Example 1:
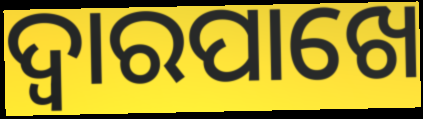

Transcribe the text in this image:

ଦ୍ୱାରପାଖେ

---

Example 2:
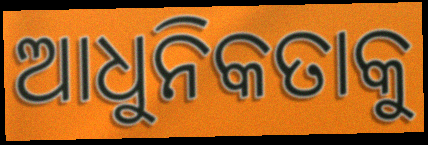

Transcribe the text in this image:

ଆଧୁନିକତାକୁ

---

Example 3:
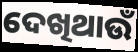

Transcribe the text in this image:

ଦେଖିଥାଉଁ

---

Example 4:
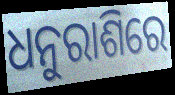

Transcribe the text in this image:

ଧନୁରାଶିରେ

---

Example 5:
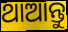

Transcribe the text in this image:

ଥାଆନ୍ତୁ